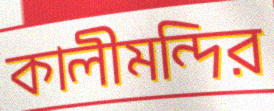
কালীমন্দির